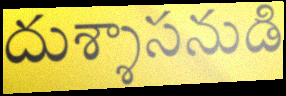
దుశ్శాసనుడి